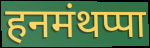
हनमंथप्पा